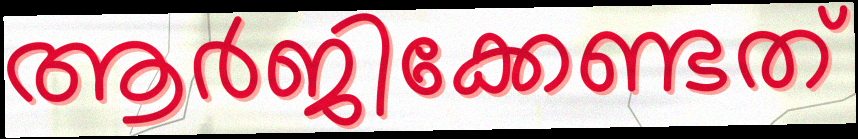
ആർജിക്കേണ്ടത്